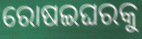
ରୋଷଇଘରକୁ